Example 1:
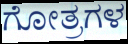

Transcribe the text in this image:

ಗೋತ್ರಗಳ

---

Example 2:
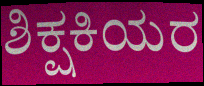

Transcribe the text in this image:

ಶಿಕ್ಷಕಿಯರ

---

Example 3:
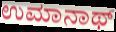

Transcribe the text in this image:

ಉಮಾನಾಥ್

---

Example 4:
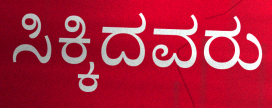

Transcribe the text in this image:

ಸಿಕ್ಕಿದವರು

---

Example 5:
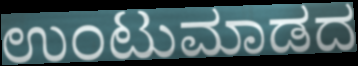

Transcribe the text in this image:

ಉಂಟುಮಾಡದ